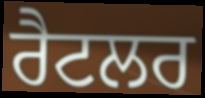
ਰੈਟਲਰ